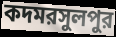
কদমরসুলপুর